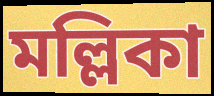
মল্লিকা